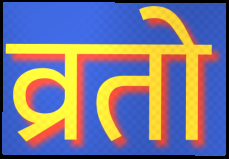
व्रतो